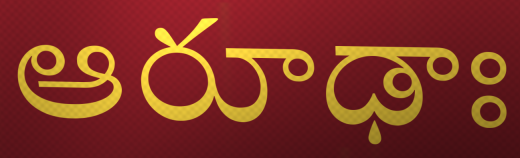
ఆరూఢాః